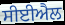
ਸੀਈਐਲ